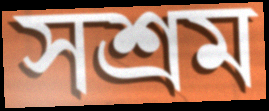
সশ্রম